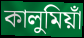
কালুমিয়াঁ